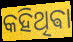
କହିଥିଵା